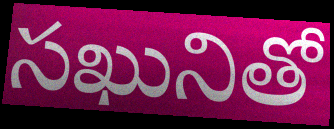
సఖునితో